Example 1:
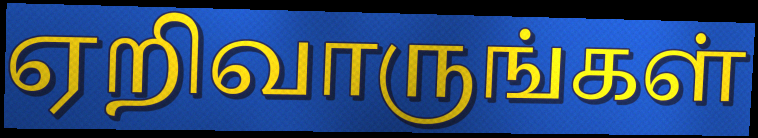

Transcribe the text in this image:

ஏறிவாருங்கள்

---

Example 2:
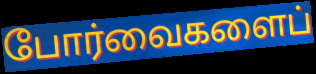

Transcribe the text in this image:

போர்வைகளைப்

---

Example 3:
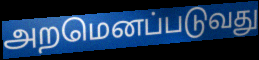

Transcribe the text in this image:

அறமெனப்படுவது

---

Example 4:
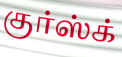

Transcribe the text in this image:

குர்ஸ்க்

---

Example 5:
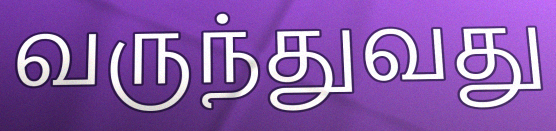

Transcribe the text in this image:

வருந்துவது